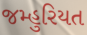
જમ્હુરિયત